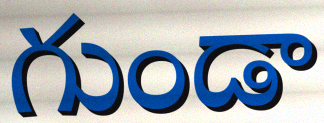
గుండా